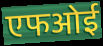
एफओई